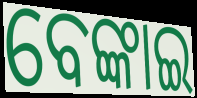
ବେଙ୍କାଇ